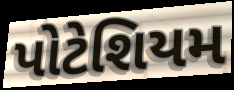
પોટેશિયમ